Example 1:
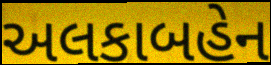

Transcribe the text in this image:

અલકાબહેન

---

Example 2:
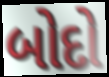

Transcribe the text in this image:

બોદો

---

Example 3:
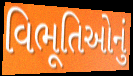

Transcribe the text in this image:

વિભૂતિઓનું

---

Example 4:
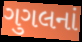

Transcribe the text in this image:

ગુગલનાં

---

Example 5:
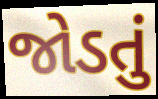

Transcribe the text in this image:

જોડતું